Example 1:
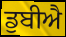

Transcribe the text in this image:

ਡੁਬੀਐ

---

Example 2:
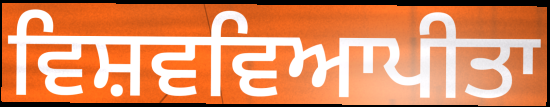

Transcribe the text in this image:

ਵਿਸ਼ਵਵਿਆਪੀਤਾ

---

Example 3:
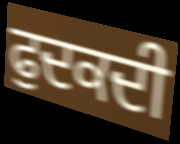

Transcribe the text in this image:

ਫੁਦਕਦੀ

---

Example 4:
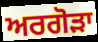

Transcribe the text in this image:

ਅਰਗੋੜਾ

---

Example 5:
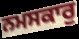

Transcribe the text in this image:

ਨਮਸਕਾਰੁ